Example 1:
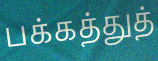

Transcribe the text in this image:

பக்கத்துத்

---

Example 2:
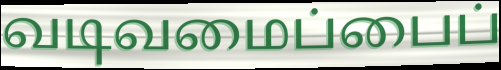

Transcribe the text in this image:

வடிவமைப்பைப்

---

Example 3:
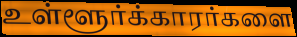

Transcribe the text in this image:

உள்ளூர்க்காரர்களை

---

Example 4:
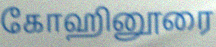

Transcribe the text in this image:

கோஹினூரை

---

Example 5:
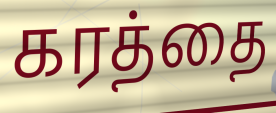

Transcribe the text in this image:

கரத்தை